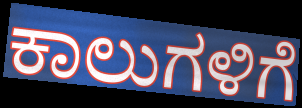
ಕಾಲುಗಳಿಗೆ